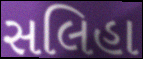
સલિહા